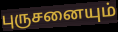
புருசனையும்